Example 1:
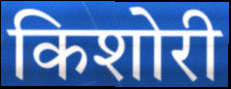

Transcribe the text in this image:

किशोरी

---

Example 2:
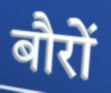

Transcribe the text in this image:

बौरों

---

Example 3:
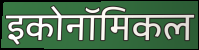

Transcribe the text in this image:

इकोनॉमिकल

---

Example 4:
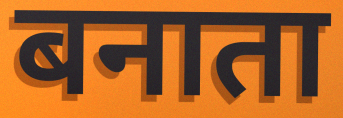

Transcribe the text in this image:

बनाता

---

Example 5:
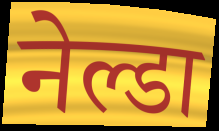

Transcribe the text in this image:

नेल्डा